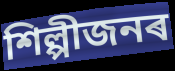
শিল্পীজনৰ